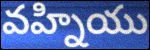
వహ్నియు